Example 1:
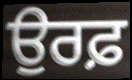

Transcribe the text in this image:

ਉਰਫ਼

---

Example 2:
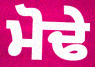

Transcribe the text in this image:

ਮੋਢੇ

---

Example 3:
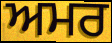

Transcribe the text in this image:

ਅਮਰ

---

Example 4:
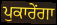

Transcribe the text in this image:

ਪੁਕਾਰੇਂਗਾ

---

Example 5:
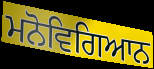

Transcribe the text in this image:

ਮਨੋਵਿਗਿਆਨ